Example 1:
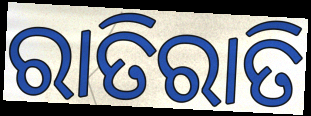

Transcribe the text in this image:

ରାତିରାତି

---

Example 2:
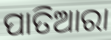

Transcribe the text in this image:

ପାତିଆରା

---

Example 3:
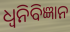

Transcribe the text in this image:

ଧ୍ୱନିବିଜ୍ଞାନ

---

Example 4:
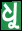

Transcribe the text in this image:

ଧୁ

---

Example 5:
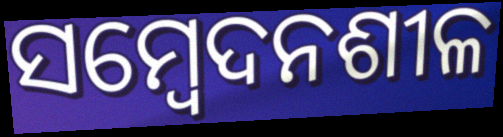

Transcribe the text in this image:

ସମ୍ବେଦନଶୀଳ